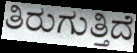
ತಿರುಗುತ್ತಿದೆ